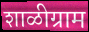
शाळीग्राम